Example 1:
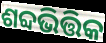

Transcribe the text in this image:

ଶବ୍ଦଭିତ୍ତିକ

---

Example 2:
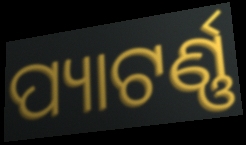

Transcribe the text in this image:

ପ୍ୟାଟର୍ଣ୍ଣ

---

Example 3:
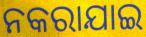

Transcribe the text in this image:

ନକରାଯାଇ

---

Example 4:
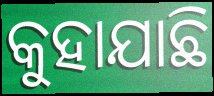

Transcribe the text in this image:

କୁହାଯାଛି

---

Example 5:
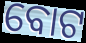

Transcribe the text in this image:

ବୋଟ